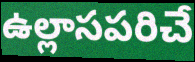
ఉల్లాసపరిచే